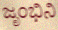
ಜೃಂಭಿನಿ